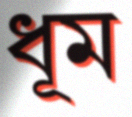
ধূম